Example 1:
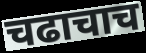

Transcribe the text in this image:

चढाचाच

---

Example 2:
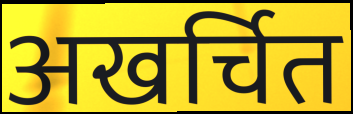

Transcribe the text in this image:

अखर्चित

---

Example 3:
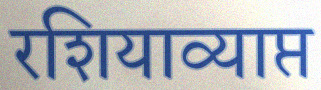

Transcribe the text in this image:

रशियाव्याप्त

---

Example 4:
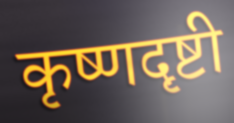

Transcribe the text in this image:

कृष्णदृष्टी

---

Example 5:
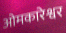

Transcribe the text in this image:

ओमकारेश्वर